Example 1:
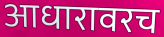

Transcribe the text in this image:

आधारावरच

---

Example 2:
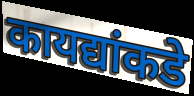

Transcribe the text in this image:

कायद्यांकडे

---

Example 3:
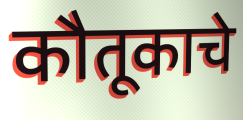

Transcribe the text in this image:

कौतूकाचे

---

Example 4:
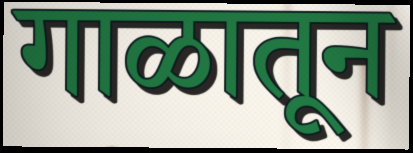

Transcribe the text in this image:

गाळातून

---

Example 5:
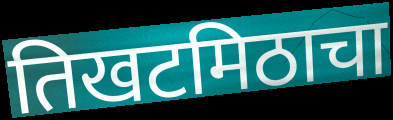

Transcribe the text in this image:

तिखटमिठाचा